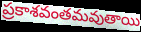
ప్రకాశవంతమవుతాయి